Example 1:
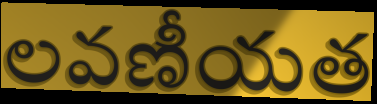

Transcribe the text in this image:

లవణీయత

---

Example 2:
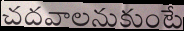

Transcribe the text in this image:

చదవాలనుకుంటే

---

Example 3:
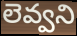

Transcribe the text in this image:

లెవ్వని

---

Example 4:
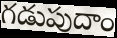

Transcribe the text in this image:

గడుపుదాం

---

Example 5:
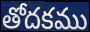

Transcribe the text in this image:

తోదకము